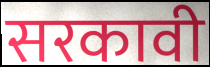
सरकावी